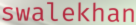
swalekhan